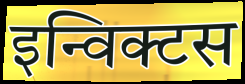
इन्विक्टस